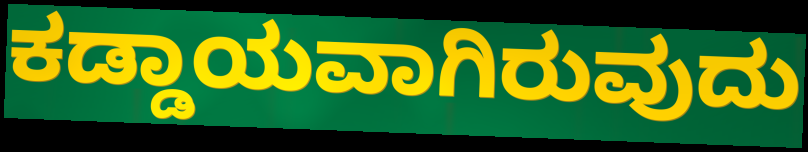
ಕಡ್ಡಾಯವಾಗಿರುವುದು